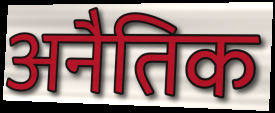
अनैतिक